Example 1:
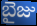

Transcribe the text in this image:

బైజు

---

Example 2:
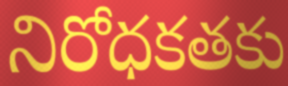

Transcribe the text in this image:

నిరోధకతకు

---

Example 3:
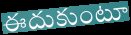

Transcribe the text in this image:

ఈదుకుంటూ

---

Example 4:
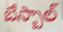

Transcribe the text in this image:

బేస్బాల్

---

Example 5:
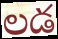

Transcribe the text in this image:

లడ